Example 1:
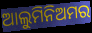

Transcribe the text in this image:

ଆଲୁମିନିଅମର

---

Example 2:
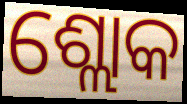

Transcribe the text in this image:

ଶ୍ଲୋକ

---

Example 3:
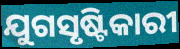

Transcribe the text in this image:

ଯୁଗସୃଷ୍ଟିକାରୀ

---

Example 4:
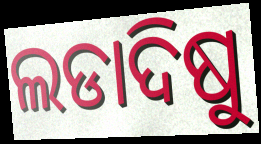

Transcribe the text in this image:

ଲଡାଦିଷୁ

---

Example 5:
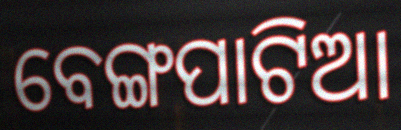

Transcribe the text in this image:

ବେଙ୍ଗପାଟିଆ